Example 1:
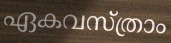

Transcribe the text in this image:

ഏകവസ്ത്രാം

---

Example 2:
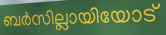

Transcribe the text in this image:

ബർസില്ലായിയോട്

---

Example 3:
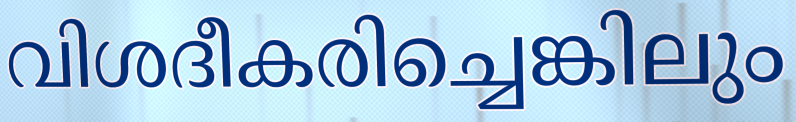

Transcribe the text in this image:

വിശദീകരിച്ചെങ്കിലും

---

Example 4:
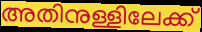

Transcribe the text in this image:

അതിനുള്ളിലേക്ക്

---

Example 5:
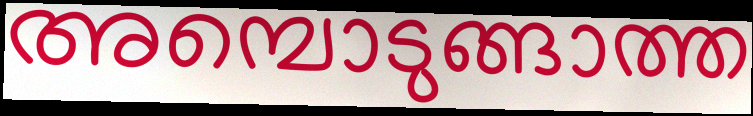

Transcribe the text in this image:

അമ്പൊടുങ്ങാത്ത